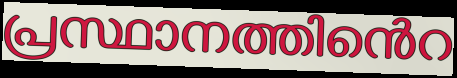
പ്രസ്ഥാനത്തിൻെറ